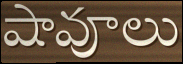
షావూలు